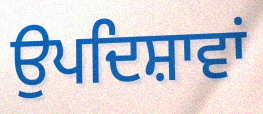
ਉਪਦਿਸ਼ਾਵਾਂ